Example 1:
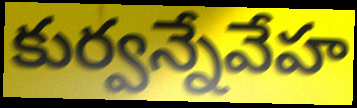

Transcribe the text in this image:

కుర్వన్నేవేహ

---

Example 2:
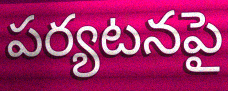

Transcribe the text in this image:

పర్యటనపై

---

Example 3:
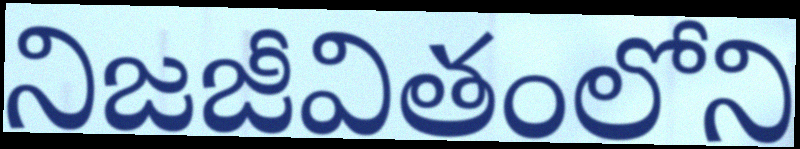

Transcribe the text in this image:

నిజజీవితంలోని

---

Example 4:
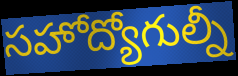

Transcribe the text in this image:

సహోద్యోగుల్నీ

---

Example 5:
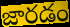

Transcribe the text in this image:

జారడం